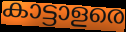
കാട്ടാളരെ